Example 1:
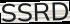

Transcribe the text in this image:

SSRD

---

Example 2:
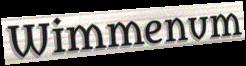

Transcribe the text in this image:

Wimmenum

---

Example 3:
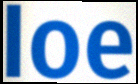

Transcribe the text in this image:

Ioe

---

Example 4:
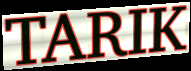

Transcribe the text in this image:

TARIK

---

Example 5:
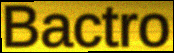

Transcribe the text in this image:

Bactro